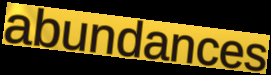
abundances